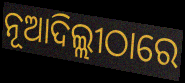
ନୂଆଦିଲ୍ଲୀଠାରେ